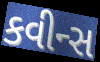
કવીન્સ